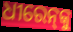
ଧୀରେନ୍‌କୁ